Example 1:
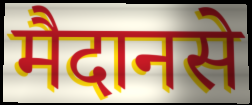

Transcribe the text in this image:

मैदानसे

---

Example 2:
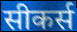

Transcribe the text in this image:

सीकर्स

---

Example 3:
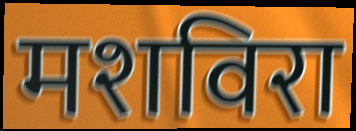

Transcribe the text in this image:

मशविरा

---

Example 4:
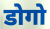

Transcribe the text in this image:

डोगो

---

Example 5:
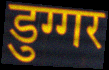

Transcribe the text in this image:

डुग्गर